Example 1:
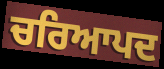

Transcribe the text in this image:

ਚਰਿਆਪਦ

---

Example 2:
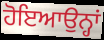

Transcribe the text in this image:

ਹੋਇਆਉਨ੍ਹਾਂ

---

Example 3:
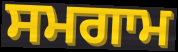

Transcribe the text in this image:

ਸਮਗਾਮ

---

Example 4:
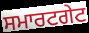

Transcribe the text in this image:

ਸਮਾਰਟਗੇਟ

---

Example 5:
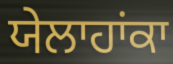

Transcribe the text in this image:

ਯੇਲਾਹਾਂਕਾ